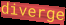
diverge